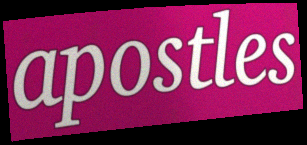
apostles